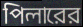
পিলারের